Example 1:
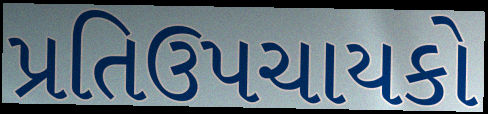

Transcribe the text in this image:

પ્રતિઉપચાયકો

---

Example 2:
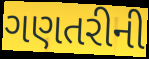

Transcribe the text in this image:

ગણતરીની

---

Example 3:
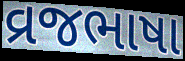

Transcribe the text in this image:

વ્રજભાષા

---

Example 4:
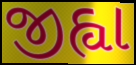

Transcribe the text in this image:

જીહ્વા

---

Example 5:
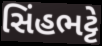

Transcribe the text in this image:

સિંહભટ્ટે